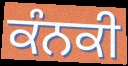
ਕੰਨਕੀ